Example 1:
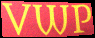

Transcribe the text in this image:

VWP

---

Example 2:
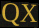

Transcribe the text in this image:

QX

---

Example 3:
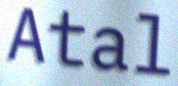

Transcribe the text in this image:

Atal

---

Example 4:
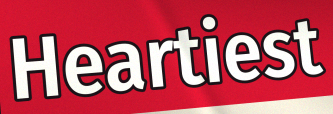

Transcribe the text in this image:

Heartiest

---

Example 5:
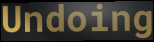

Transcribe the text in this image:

Undoing